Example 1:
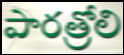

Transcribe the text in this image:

పారత్రోలి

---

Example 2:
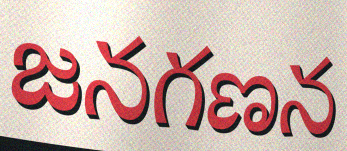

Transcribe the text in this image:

జనగణన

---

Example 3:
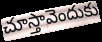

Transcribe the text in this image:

చూస్తావెందుకు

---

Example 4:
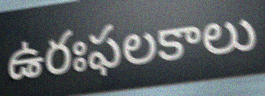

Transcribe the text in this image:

ఉరఃఫలకాలు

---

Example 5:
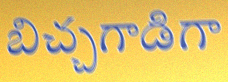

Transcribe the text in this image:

బిచ్చగాడిగా